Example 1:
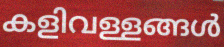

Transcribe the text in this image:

കളിവള്ളങ്ങൾ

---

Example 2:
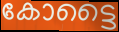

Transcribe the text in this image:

കോട്ടൈ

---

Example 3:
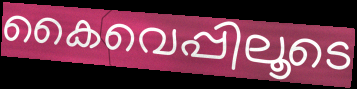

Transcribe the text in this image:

കൈവെപ്പിലൂടെ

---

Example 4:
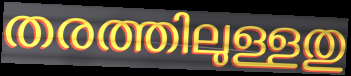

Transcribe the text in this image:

തരത്തിലുള്ളതു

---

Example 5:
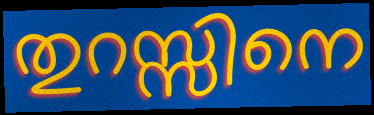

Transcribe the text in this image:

തുറസ്സിനെ